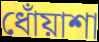
ধোঁয়াশা